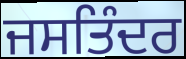
ਜਸਤਿੰਦਰ